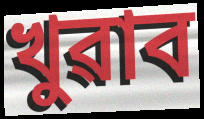
খুৱাব